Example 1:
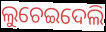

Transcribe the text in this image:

ଲୁଚେଇଦେଲି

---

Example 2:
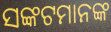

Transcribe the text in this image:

ସଙ୍କଟମାନଙ୍କ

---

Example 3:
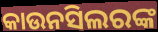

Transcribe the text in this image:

କାଉନସିଲରଙ୍କ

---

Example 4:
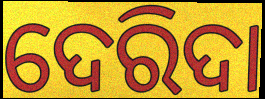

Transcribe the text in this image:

ଦେରିଦା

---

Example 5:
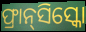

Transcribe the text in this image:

ଫ୍ରାନ୍‌ସିସ୍କୋ